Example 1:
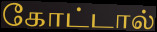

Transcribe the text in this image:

கோட்டால்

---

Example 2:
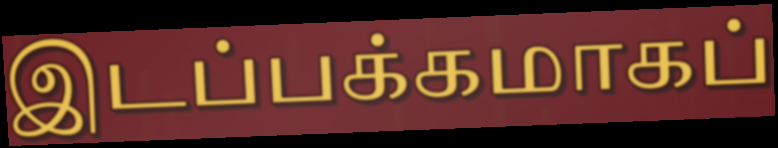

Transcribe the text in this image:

இடப்பக்கமாகப்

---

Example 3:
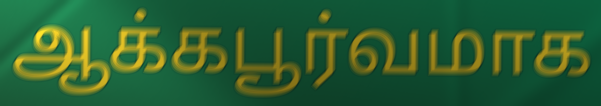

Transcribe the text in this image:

ஆக்கபூர்வமாக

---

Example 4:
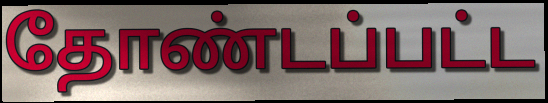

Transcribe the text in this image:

தோண்டப்பட்ட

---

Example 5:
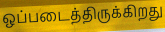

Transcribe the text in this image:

ஒப்படைத்திருக்கிறது